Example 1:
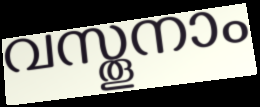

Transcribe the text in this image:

വസ്തൂനാം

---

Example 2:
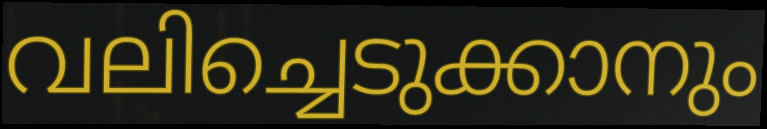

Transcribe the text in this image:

വലിച്ചെടുക്കാനും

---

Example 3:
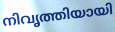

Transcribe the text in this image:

നിവൃത്തിയായി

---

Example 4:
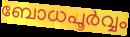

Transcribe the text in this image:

ബോധപൂർവ്വം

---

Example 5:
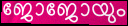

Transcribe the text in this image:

ജോജോയും